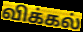
விக்கல்